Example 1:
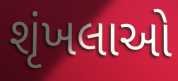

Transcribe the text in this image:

શૃંખલાઓ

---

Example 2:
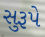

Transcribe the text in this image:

સુરૂપે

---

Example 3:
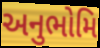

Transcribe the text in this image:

અનુભોમિ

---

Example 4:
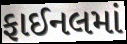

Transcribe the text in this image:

ફાઈનલમાં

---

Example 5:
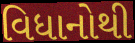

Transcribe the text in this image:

વિધાનોથી